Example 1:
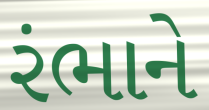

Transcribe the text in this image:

રંભાને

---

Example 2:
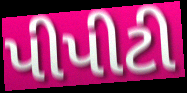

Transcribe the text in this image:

પીપીટી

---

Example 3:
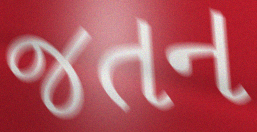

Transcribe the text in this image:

જતન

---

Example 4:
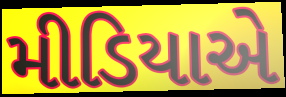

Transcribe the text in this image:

મીડિયાએ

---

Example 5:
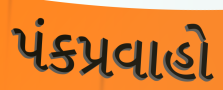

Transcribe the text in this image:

પંકપ્રવાહો